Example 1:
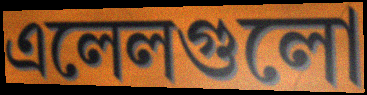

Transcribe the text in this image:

এলেলগুলো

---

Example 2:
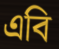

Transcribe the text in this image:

এবি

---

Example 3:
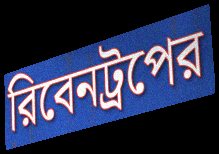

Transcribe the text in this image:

রিবেনট্রপের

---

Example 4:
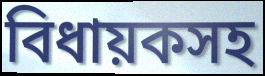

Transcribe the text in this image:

বিধায়কসহ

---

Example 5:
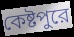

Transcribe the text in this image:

কেষ্টপুরে